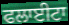
ਫਲਾਈਟਾ